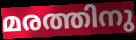
മരത്തിനു